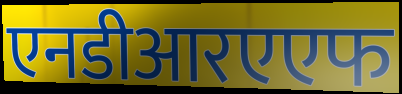
एनडीआरएएफ